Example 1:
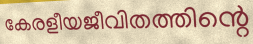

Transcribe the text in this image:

കേരളീയജീവിതത്തിന്റെ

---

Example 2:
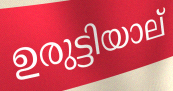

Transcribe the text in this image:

ഉരുട്ടിയാല്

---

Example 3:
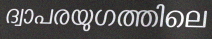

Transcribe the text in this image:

ദ്വാപരയുഗത്തിലെ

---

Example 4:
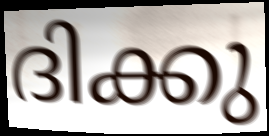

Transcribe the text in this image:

ദിക്കു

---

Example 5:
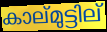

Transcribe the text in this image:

കാല്മുട്ടില്